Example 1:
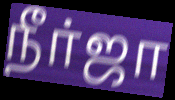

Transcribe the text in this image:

நீர்ஜா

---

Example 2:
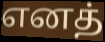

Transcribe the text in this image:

எனத்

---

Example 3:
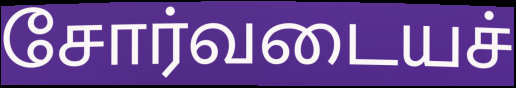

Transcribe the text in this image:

சோர்வடையச்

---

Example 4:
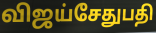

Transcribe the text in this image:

விஜய்சேதுபதி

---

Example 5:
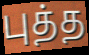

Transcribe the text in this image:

புத்த